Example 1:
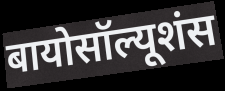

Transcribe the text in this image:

बायोसॉल्यूशंस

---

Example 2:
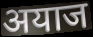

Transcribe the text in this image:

अयाज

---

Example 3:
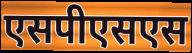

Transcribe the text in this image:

एसपीएसएस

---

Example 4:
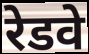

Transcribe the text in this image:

रेडवे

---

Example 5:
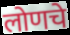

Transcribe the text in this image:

लोणचे